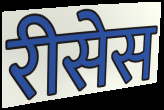
रीसेस